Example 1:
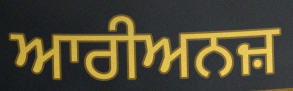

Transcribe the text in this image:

ਆਰੀਅਨਜ਼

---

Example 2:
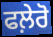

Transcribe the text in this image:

ਫਲ਼ੇਰੋ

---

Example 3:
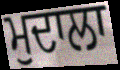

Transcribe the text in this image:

ਮੁਦਾਲਾ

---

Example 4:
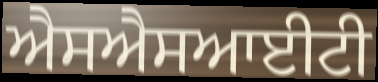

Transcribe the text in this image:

ਐਸਐਸਆਈਟੀ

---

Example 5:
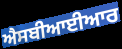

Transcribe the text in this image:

ਐਸਬੀਆਈਆਰ